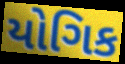
યોગિક